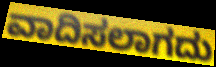
ವಾದಿಸಲಾಗದು